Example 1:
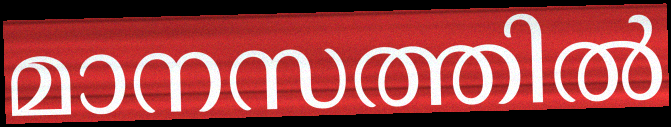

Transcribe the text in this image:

മാനസത്തിൽ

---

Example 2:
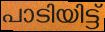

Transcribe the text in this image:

പാടിയിട്ട്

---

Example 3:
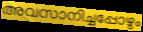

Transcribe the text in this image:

അവസാനിച്ചപ്പോഴും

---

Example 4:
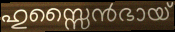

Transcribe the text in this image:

ഹുസ്സൈൻഭായ്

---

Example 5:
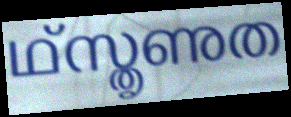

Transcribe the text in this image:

ഥ്സ്തൃണുത